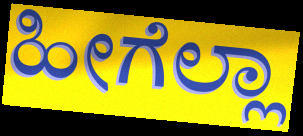
ಹೀಗೆಲ್ಲಾ